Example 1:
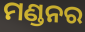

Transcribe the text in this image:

ମଣ୍ଡନର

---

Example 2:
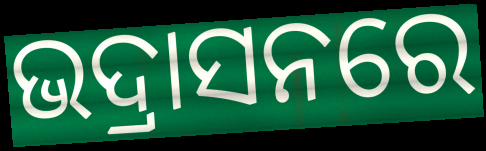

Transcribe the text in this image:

ଭଦ୍ରାସନରେ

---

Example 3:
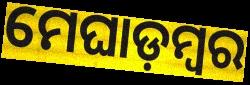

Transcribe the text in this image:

ମେଘାଡ଼ମ୍ବର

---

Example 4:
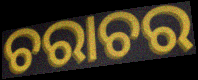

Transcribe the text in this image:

ଚରାଚର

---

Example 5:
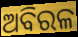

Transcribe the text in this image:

ଅବିରଳ